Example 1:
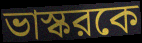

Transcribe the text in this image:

ভাস্করকে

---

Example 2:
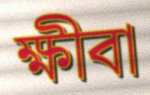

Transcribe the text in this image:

ক্ষীবা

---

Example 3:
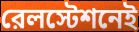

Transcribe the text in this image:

রেলস্টেশনেই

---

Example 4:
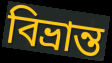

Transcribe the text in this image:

বিভ্রান্ত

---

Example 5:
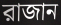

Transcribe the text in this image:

রাজান